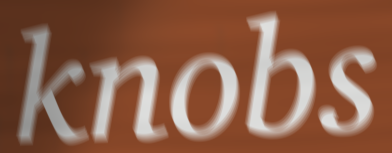
knobs